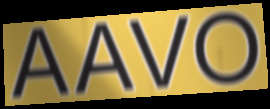
AAVO